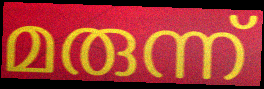
മരുന്ന്